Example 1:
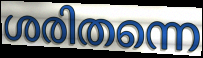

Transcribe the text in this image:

ശരിതന്നെ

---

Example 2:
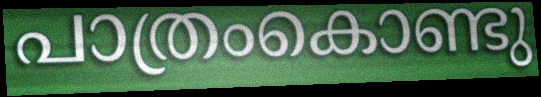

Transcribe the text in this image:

പാത്രംകൊണ്ടു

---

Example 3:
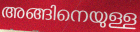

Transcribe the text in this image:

അങ്ങിനെയുള്ള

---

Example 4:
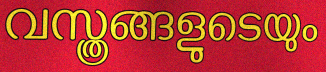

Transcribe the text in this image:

വസ്ത്രങ്ങളുടെയും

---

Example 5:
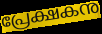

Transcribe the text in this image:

പ്രേക്ഷകനു